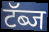
टॅब्ज